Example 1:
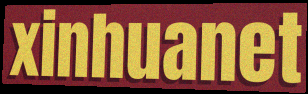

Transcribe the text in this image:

xinhuanet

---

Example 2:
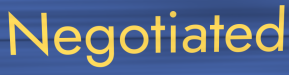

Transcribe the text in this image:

Negotiated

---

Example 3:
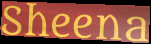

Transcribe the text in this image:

Sheena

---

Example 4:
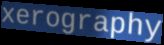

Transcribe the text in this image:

xerography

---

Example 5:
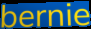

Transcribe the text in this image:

bernie